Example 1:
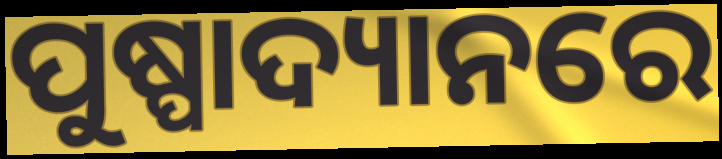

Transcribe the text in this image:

ପୁଷ୍ପାଦ୍ୟାନରେ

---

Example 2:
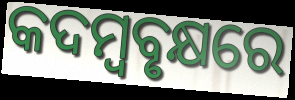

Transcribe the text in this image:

କଦମ୍ୱବୃକ୍ଷରେ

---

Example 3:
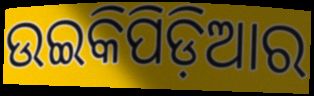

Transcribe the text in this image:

ଉଇକିପିଡ଼ିଆର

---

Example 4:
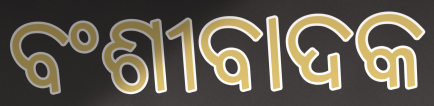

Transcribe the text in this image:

ବଂଶୀବାଦକ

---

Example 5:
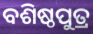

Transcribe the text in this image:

ବଶିଷ୍ଠପୁତ୍ର